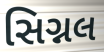
સિગ્નલ